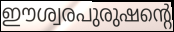
ഈശ്വരപുരുഷന്റെ